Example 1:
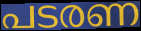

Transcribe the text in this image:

പടരണ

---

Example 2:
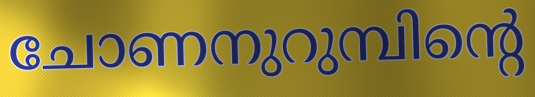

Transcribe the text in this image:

ചോണനുറുമ്പിന്റെ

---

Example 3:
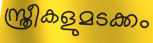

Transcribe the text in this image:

സ്ത്രീകളുമടക്കം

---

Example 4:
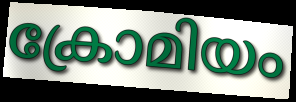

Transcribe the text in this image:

ക്രോമിയം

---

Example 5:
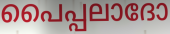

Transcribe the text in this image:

പൈപ്പലാദോ